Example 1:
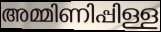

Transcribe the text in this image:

അമ്മിണിപ്പിള്ള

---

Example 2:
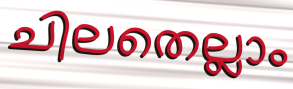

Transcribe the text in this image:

ചിലതെല്ലാം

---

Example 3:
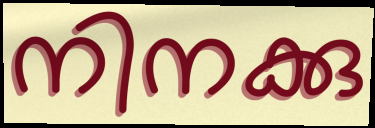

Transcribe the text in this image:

നിനക്കു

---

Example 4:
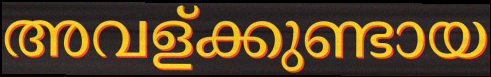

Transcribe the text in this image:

അവള്ക്കുണ്ടായ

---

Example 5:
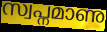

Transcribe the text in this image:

സ്വപ്നമാണു